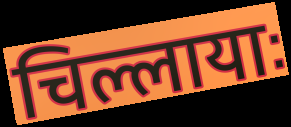
चिल्लायाः